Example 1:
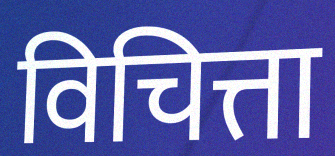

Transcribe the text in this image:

विचित्ता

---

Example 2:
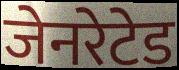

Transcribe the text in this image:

जेनरेटेड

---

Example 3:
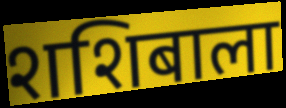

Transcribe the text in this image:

शशिबाला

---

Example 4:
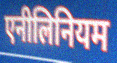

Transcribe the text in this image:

एनीलिनियम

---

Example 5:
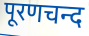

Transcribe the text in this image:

पूरणचन्द